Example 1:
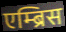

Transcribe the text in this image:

एम्ब्रिस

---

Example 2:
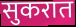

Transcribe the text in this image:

सुकरात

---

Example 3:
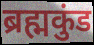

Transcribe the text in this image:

ब्रह्मकुंड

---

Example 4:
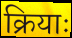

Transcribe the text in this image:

क्रियाः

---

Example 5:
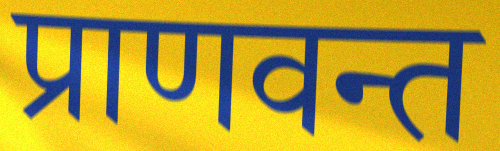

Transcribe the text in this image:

प्राणवन्त